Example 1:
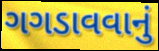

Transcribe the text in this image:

ગગડાવવાનું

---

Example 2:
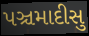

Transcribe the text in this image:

પઞ્ચમાદીસુ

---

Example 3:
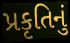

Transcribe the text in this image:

પ્રકૃતિનું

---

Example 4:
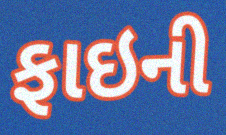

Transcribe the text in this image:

ફાઇની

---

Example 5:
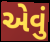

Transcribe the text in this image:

એવું